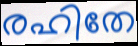
രഹിതേ